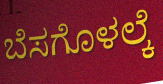
ಬೆಸಗೊಳಲ್ಕೆ